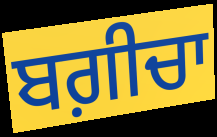
ਬਗ਼ੀਚਾ